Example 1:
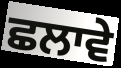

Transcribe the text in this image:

ਛਲਾਵੇ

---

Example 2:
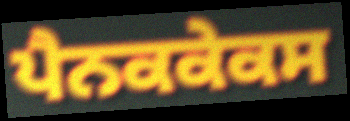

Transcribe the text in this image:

ਪੈਨਕਕੇਕਸ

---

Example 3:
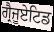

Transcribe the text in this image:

ਗ੍ਰੈਜੂਏਟਿਡ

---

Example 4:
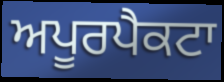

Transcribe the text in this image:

ਅਪੂਰਪੈਕਟਾ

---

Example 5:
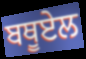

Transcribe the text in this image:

ਬਥੂਏਲ